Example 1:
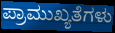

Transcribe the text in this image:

ಪ್ರಾಮುಖ್ಯತೆಗಳು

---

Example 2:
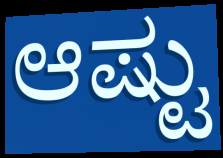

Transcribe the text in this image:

ಆಷ್ಟು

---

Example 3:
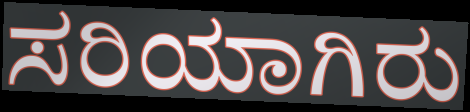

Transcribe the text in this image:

ಸರಿಯಾಗಿರು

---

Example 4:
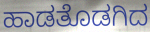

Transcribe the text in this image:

ಹಾಡತೊಡಗಿದ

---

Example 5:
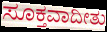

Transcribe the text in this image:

ಸೂಕ್ತವಾದೀತು